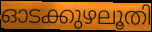
ഓടക്കുഴലൂതി